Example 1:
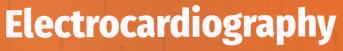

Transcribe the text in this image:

Electrocardiography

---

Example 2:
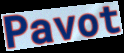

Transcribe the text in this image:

Pavot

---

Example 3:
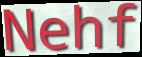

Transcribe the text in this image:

Nehf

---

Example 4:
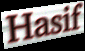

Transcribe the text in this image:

Hasif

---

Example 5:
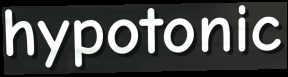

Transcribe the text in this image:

hypotonic